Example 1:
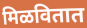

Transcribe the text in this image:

मिळवितात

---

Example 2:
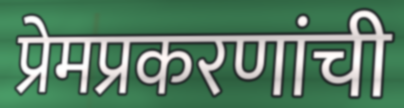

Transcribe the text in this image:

प्रेमप्रकरणांची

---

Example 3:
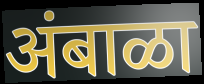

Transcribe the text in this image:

अंबाळा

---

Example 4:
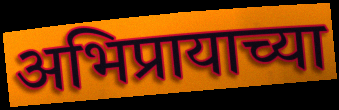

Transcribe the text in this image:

अभिप्रायाच्या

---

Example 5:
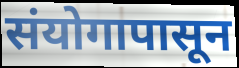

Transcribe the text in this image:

संयोगापासून